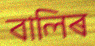
বালিৰ